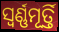
ସ୍ଵର୍ଣ୍ଣମୂର୍ତ୍ତି